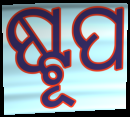
ଷ୍ଟୂପ